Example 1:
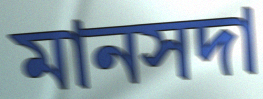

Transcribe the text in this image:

মানসদা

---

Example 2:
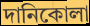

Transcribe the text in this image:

দানিকোলা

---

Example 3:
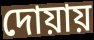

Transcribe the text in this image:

দোয়ায়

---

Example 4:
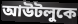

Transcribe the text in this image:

আউটলুকে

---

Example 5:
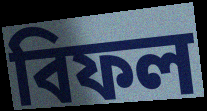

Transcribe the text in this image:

বিফল